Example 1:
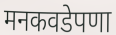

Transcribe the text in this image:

मनकवडेपणा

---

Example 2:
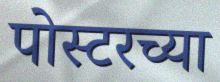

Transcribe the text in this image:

पोस्टरच्या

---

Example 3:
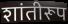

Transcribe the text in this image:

शांतीरूप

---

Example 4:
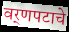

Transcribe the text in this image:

वर्णपटाचे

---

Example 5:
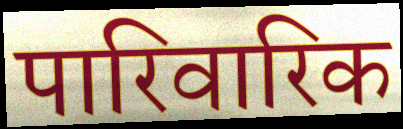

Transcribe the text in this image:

पारिवारिक